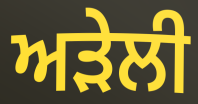
ਅੜੇਲੀ